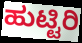
ಹುಟ್ಟಿರಿ